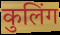
कुलिंग